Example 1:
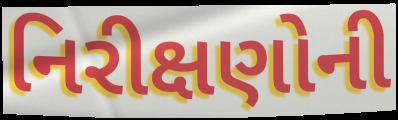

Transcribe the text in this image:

નિરીક્ષણોની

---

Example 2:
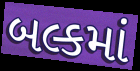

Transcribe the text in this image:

બલ્કમાં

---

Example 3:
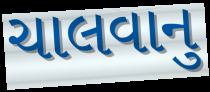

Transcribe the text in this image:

ચાલવાનુ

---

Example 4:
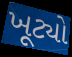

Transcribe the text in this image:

ખૂટ્યો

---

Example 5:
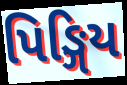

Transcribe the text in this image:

પિઙ્ગિય